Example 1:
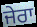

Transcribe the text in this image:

ਜੇਰਾ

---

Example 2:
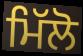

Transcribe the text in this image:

ਮਿੱਲੋ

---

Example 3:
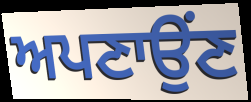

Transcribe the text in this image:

ਅਪਣਾਉਂਣ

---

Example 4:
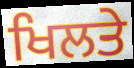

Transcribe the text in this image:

ਖਿਲਤੇ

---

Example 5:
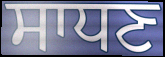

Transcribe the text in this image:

ਸਾਧਣ